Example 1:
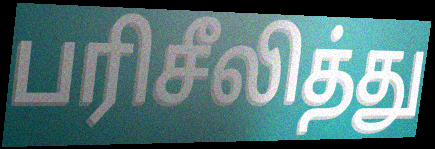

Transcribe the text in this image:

பரிசீலித்து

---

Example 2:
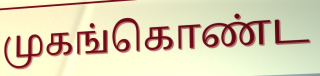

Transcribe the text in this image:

முகங்கொண்ட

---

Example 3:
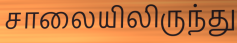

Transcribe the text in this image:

சாலையிலிருந்து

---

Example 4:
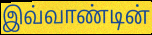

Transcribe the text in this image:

இவ்வாண்டின்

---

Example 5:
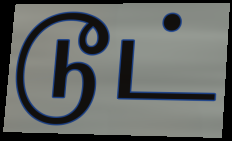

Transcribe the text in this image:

டூட்